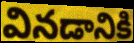
వినడానికి